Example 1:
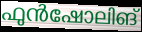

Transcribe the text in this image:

ഫുൻഷോലിങ്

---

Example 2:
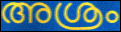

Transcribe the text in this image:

അശ്രം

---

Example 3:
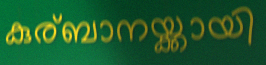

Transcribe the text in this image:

കുര്ബാനയ്ക്കായി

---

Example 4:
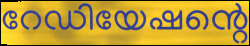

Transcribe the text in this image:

റേഡിയേഷന്റെ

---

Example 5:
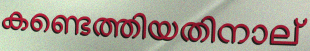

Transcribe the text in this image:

കണ്ടെത്തിയതിനാല്